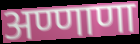
अण्णाणा